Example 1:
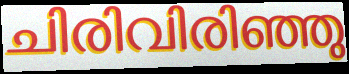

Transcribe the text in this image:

ചിരിവിരിഞ്ഞു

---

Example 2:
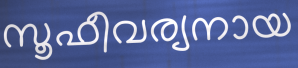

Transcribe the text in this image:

സൂഫീവര്യനായ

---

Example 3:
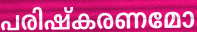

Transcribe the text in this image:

പരിഷ്കരണമോ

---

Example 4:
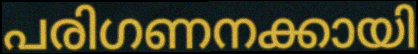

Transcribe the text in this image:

പരിഗണനക്കായി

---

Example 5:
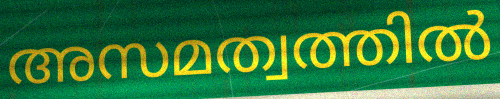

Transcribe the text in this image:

അസമത്വത്തിൽ